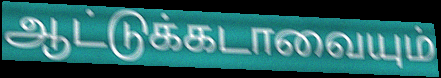
ஆட்டுக்கடாவையும்